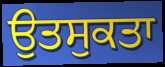
ਉਤਸੁਕਤਾ